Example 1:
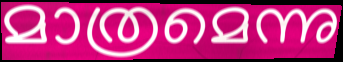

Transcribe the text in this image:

മാത്രമെന്നു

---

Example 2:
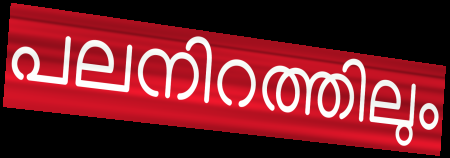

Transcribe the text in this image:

പലനിറത്തിലും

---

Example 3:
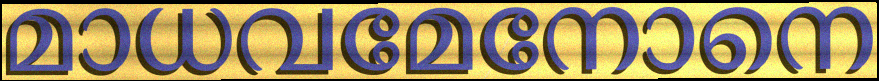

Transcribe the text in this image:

മാധവമേനോനെ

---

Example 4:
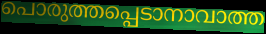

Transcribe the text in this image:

പൊരുത്തപ്പെടാനാവാത്ത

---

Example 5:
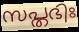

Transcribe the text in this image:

സപ്തഭിഃ